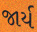
જાર્ય